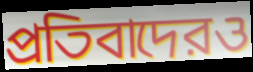
প্রতিবাদেরও